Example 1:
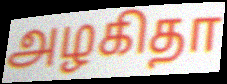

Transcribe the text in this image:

அழகிதா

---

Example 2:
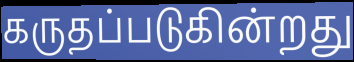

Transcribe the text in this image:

கருதப்படுகின்றது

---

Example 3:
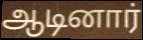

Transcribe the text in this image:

ஆடினார்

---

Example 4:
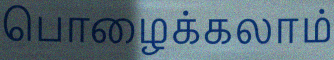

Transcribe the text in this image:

பொழைக்கலாம்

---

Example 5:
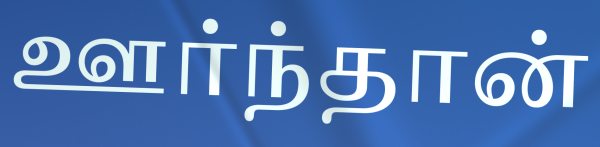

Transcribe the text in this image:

ஊர்ந்தான்